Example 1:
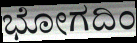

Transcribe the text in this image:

ಭೋಗದಿಂ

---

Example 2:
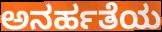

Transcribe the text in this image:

ಅನರ್ಹತೆಯ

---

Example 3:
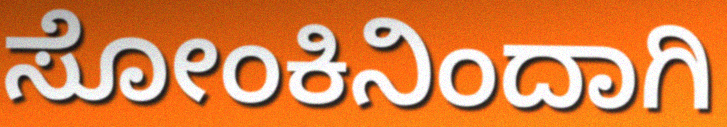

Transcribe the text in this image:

ಸೋಂಕಿನಿಂದಾಗಿ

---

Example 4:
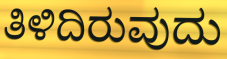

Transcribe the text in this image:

ತಿಳಿದಿರುವುದು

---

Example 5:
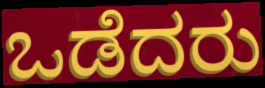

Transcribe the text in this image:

ಒಡೆದರು